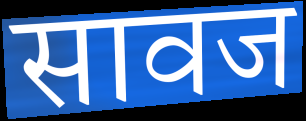
सावज